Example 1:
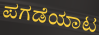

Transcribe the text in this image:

ಪಗಡೆಯಾಟ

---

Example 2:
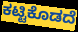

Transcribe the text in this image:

ಕಟ್ಟಿಕೊಡದೆ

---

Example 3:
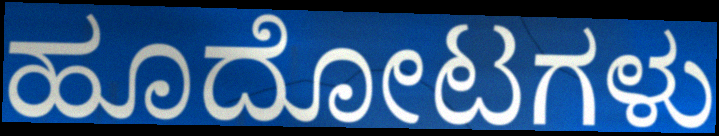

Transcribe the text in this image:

ಹೂದೋಟಗಳು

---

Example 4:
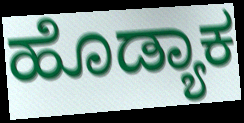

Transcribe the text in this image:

ಹೊಡ್ಯಾಕ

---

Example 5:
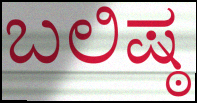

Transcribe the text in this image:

ಬಲಿಷ್ಠ